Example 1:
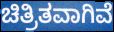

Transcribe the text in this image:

ಚಿತ್ರಿತವಾಗಿವೆ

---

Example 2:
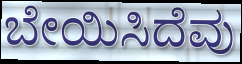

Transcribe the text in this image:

ಬೇಯಿಸಿದೆವು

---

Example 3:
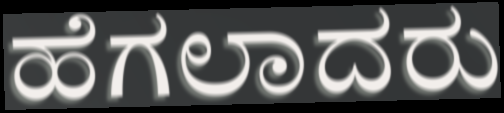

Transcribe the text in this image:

ಹೆಗಲಾದರು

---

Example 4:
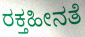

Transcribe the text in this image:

ರಕ್ತಹೀನತೆ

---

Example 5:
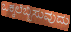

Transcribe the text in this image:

ಒಕ್ಕಲೆಬ್ಬಿಸುವುದು